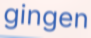
gingen